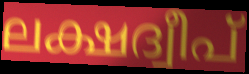
ലക്ഷദ്വീപ്